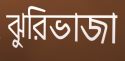
ঝুরিভাজা